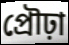
প্রৌঢ়া